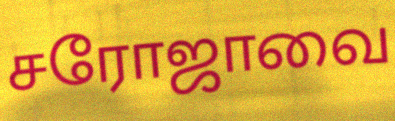
சரோஜாவை